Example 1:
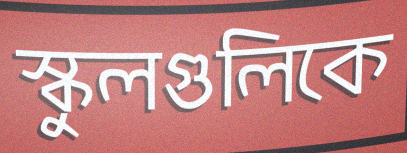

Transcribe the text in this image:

স্কুলগুলিকে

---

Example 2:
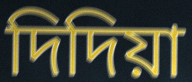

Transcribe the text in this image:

দিদিয়া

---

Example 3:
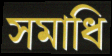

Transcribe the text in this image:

সমাধি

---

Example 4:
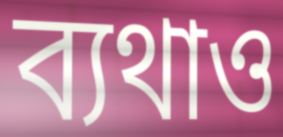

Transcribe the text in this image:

ব্যথাও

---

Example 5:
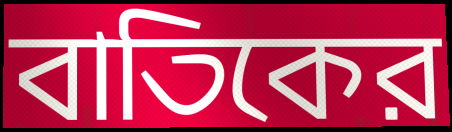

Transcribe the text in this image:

বাতিকের